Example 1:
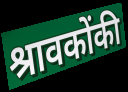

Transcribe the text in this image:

श्रावकोंकी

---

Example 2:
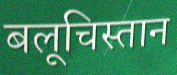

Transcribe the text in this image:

बलूचिस्तान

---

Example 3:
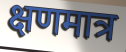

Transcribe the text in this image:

क्षणमात्र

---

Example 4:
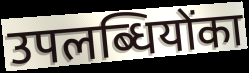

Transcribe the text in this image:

उपलब्धियोंका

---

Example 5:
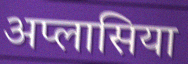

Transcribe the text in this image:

अप्लासिया